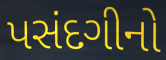
પસંદગીનો